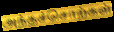
அந்தச்சொற்கள்